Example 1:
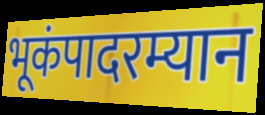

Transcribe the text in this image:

भूकंपादरम्यान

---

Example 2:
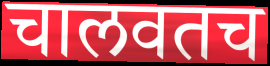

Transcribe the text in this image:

चालवतच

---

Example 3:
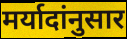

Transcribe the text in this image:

मर्यादांनुसार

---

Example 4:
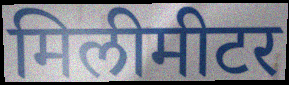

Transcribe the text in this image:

मिलीमीटर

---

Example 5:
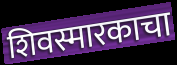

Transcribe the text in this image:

शिवस्मारकाचा